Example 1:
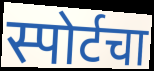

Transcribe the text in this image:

स्पोर्टचा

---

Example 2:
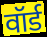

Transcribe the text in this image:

वॉर्ड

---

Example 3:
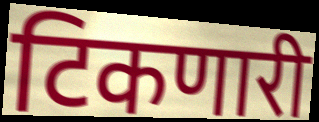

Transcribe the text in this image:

टिकणारी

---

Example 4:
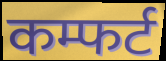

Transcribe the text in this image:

कम्फर्ट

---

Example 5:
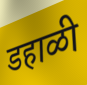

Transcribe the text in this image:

डहाळी